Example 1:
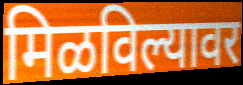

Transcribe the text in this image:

मिळविल्यावर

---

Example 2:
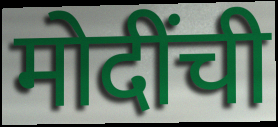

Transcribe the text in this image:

मोदींची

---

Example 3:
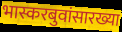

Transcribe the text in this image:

भास्करबुवांसारख्या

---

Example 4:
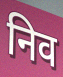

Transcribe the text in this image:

निव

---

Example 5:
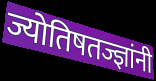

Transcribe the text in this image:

ज्योतिषतज्ज्ञांनी